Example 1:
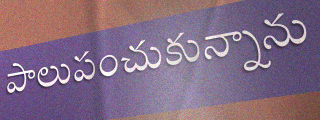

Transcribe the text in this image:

పాలుపంచుకున్నాను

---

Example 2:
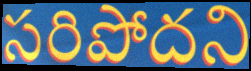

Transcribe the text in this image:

సరిపోదని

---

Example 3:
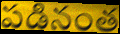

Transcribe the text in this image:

పడినంత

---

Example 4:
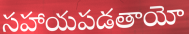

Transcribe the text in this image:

సహాయపడతాయో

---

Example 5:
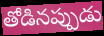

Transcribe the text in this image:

తోడినప్పుడు